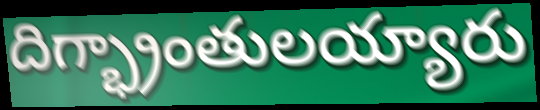
దిగ్భ్రాంతులయ్యారు